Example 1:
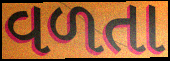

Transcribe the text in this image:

વળતા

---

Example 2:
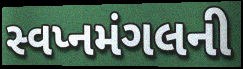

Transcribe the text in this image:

સ્વપ્નમંગલની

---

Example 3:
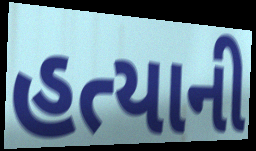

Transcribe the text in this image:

હત્યાની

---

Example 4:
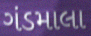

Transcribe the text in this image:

ગંડમાલા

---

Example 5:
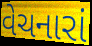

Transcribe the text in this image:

વેચનારાં